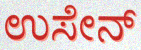
ಉಸೇನ್